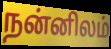
நன்னிலம்